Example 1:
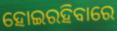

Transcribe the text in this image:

ହୋଇରହିବାରେ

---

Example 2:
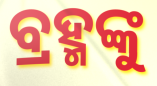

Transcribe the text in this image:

ବ୍ରହ୍ମଙ୍କୁ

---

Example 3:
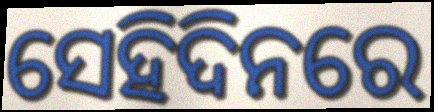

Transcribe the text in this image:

ସେହିଦିନରେ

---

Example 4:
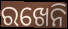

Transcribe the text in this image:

ରଖେନି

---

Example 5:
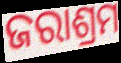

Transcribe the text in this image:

ଜରାଶ୍ରମ